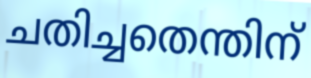
ചതിച്ചതെന്തിന്